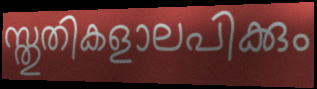
സ്തുതികളാലപിക്കും